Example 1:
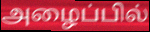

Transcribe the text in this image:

அழைப்பில்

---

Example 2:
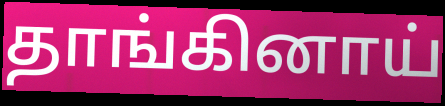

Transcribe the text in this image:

தாங்கினாய்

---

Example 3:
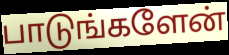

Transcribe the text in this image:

பாடுங்களேன்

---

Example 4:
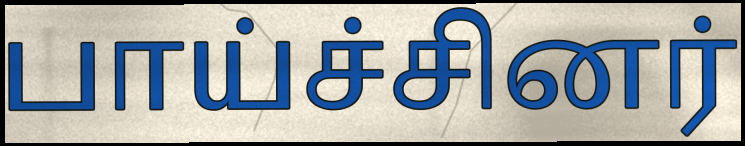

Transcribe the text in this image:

பாய்ச்சினர்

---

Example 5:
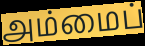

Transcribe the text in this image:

அம்மைப்